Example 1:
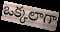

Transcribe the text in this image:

ఒక్కలాగా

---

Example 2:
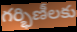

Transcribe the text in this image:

గర్భిణీలకు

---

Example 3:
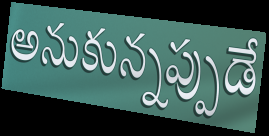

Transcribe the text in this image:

అనుకున్నప్పుడే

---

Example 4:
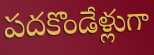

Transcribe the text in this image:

పదకొండేళ్లుగా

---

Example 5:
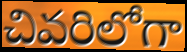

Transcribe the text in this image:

చివరిలోగా